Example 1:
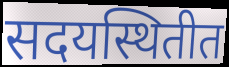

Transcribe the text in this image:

सदयस्थितीत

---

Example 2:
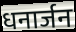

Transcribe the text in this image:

धनार्जन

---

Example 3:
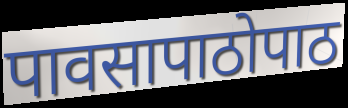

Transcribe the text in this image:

पावसापाठोपाठ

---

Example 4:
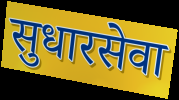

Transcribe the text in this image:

सुधारसेवा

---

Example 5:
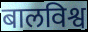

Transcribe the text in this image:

बालविश्व